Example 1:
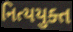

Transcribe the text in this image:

નિત્યયુક્ત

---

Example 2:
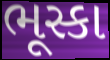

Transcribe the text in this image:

ભૂસ્કા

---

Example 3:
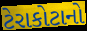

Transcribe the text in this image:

ટેરાકોટાનો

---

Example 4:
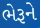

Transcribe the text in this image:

ભેરૂને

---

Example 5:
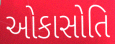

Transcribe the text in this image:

ઓકાસોતિ